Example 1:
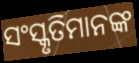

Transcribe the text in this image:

ସଂସ୍କୃତିମାନଙ୍କ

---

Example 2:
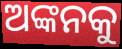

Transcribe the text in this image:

ଅଙ୍କନକୁ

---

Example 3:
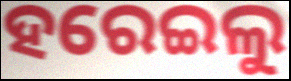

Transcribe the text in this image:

ହରେଇଲୁ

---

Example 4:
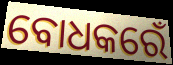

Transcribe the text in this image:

ବୋଧକରେଁ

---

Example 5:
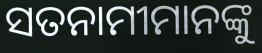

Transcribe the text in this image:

ସତନାମୀମାନଙ୍କୁ